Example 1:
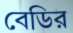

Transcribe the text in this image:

বেডির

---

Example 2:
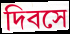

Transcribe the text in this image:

দিবসে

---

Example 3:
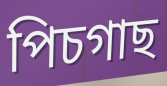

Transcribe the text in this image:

পিচগাছ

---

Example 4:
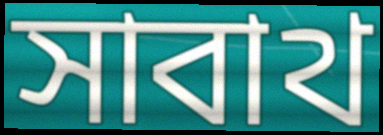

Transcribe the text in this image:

সাবাথ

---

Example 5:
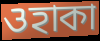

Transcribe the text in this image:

ওহাকা